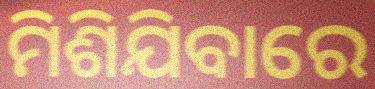
ମିଶିଯିବାରେ